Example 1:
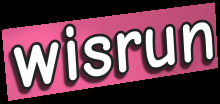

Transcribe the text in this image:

wisrun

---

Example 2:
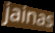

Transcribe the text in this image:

jainas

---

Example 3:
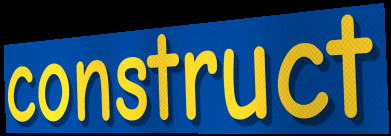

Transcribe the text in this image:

construct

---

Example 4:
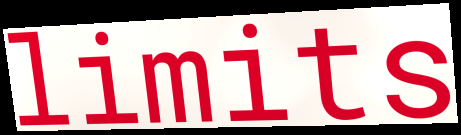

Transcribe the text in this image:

limits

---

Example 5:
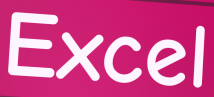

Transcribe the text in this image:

Excel